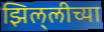
झिल्लीच्या